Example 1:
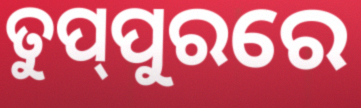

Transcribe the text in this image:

ତୁପ୍‌ପୁରରେ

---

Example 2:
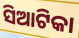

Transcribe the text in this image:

ସିଆଟିକା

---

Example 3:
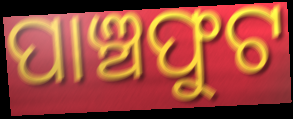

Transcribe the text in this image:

ପାଞ୍ଚଫୁଟ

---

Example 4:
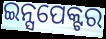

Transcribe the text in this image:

ଇନ୍ସପେକ୍ଟର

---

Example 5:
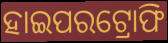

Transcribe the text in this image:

ହାଇପରଟ୍ରୋଫି